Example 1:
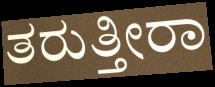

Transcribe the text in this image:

ತರುತ್ತೀರಾ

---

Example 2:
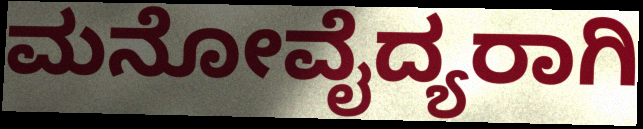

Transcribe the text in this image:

ಮನೋವೈದ್ಯರಾಗಿ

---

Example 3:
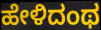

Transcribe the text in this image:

ಹೇಳಿದಂಥ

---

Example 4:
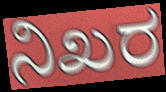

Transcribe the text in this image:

ನಿಖರ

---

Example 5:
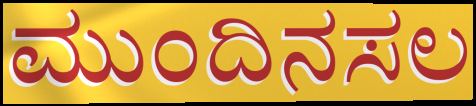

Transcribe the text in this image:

ಮುಂದಿನಸಲ